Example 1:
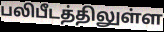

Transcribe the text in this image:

பலிபீடத்திலுள்ள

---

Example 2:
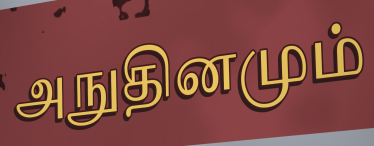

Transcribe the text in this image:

அநுதினமும்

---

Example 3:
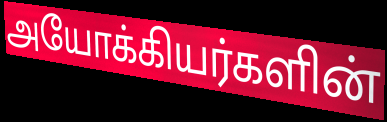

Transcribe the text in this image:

அயோக்கியர்களின்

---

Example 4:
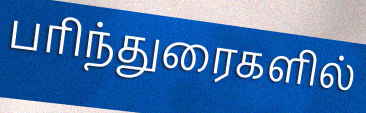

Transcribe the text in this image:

பரிந்துரைகளில்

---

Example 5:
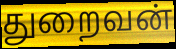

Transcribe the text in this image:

துறைவன்